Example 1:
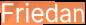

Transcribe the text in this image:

Friedan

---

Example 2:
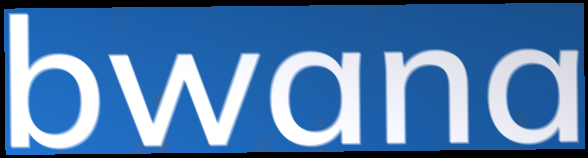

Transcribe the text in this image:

bwana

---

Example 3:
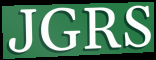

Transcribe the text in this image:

JGRS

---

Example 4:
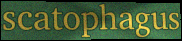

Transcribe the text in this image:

scatophagus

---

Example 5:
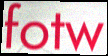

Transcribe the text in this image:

fotw